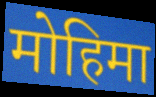
मोहिमा